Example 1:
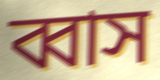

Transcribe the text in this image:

ব্বাস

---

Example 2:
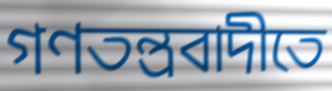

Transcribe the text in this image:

গণতন্ত্রবাদীতে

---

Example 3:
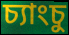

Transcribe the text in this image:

চ্যাংচু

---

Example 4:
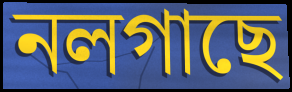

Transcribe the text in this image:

নলগাছে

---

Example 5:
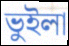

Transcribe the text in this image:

ভুইলা